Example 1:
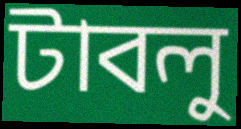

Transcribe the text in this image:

টাবলু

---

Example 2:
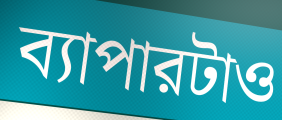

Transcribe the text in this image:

ব্যাপারটাও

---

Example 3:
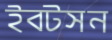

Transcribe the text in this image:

ইবটসন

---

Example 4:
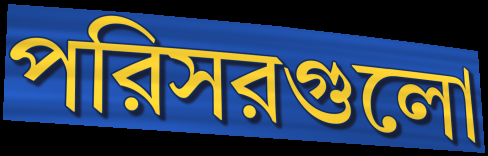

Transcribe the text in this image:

পরিসরগুলো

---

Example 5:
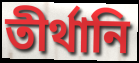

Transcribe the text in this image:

তীর্থানি